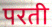
परती